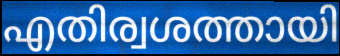
എതിര്വശത്തായി